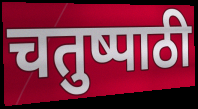
चतुष्पाठी